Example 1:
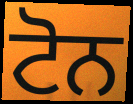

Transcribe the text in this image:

ਟੋਨ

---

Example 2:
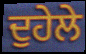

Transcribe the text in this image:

ਦੁਹੇਲੇ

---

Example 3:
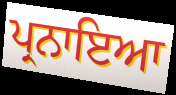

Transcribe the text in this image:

ਪ੍ਰਨਾਇਆ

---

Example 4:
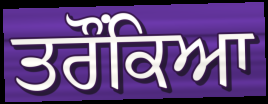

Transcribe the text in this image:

ਤਰੌਂਕਿਆ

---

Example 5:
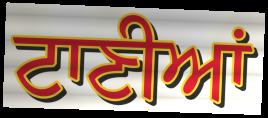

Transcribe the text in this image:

ਟਾਣੀਆਂ